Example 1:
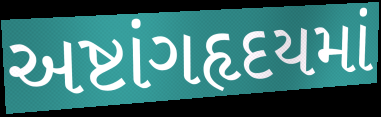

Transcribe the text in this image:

અષ્ટાંગહૃદયમાં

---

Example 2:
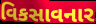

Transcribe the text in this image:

વિકસાવનાર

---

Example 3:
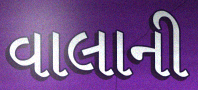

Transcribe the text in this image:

વાલાની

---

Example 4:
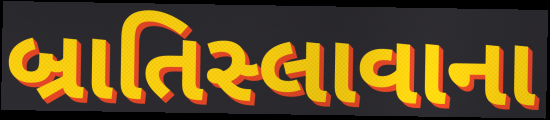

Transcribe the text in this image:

બ્રાતિસ્લાવાના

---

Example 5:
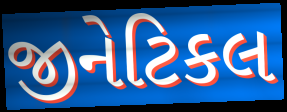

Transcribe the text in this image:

જીનેટિકલ